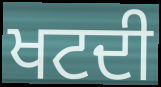
ਖਟਦੀ